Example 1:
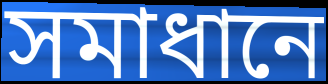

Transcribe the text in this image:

সমাধানে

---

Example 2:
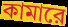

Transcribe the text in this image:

কামারে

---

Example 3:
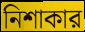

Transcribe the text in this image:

নিশাকার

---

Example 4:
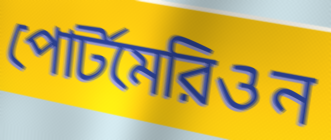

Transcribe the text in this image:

পোর্টমেরিওন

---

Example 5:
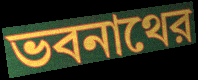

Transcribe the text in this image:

ভবনাথের